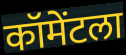
कॉमेंटला